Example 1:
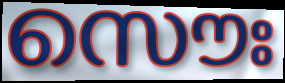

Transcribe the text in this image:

സൌഃ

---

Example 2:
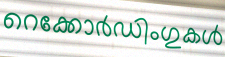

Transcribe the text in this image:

റെക്കോർഡിംഗുകൾ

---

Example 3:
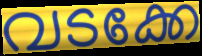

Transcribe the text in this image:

വടക്കേ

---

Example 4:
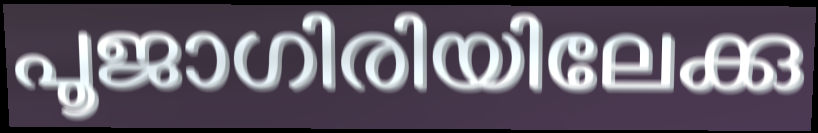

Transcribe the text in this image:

പൂജാഗിരിയിലേക്കു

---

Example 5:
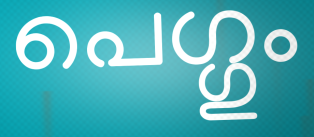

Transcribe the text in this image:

പെഗ്ഗും